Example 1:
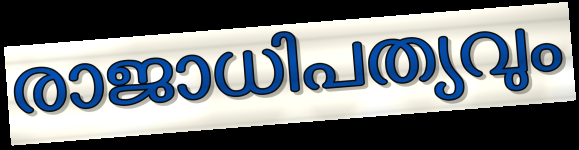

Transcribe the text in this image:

രാജാധിപത്യവും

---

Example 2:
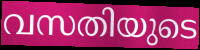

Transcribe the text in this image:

വസതിയുടെ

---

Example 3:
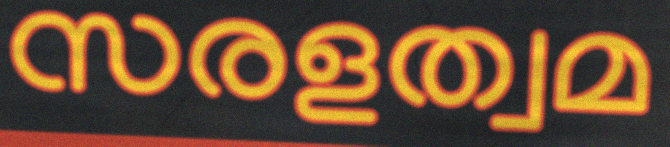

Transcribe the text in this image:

സരളത്വമ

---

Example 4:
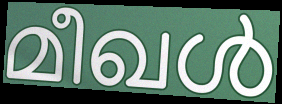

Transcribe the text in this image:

മീഖൾ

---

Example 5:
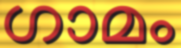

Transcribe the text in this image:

ഗാമം